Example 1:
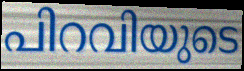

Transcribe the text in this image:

പിറവിയുടെ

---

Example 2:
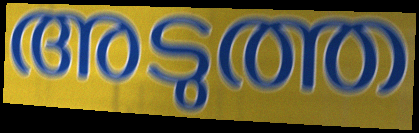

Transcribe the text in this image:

അടുത്ത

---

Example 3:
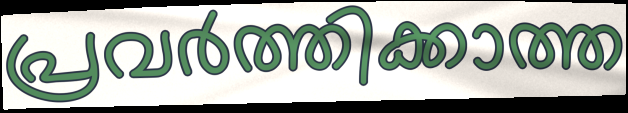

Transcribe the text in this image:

പ്രവർത്തിക്കാത്ത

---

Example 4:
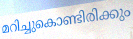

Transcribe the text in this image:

മറിച്ചുകൊണ്ടിരിക്കും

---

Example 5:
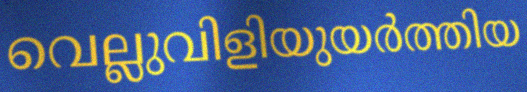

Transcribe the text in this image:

വെല്ലുവിളിയുയർത്തിയ